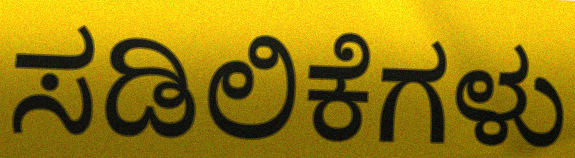
ಸಡಿಲಿಕೆಗಳು